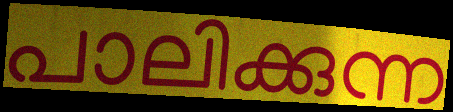
പാലിക്കുന്ന